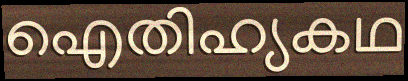
ഐതിഹ്യകഥ